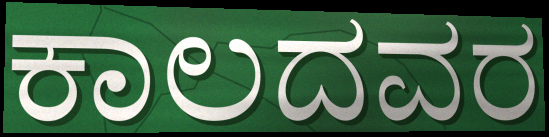
ಕಾಲದವರ